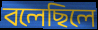
বলেছিলে